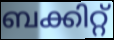
ബക്കിറ്റ്